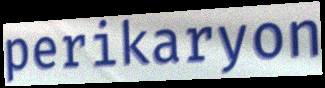
perikaryon